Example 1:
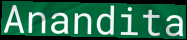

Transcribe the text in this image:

Anandita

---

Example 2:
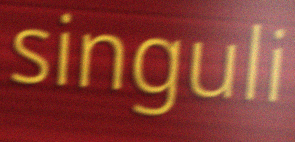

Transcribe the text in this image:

singuli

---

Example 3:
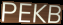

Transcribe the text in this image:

PEKB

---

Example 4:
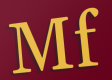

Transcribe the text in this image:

Mf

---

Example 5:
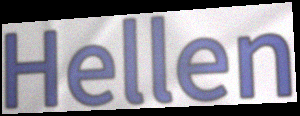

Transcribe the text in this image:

Hellen